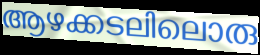
ആഴക്കടലിലൊരു